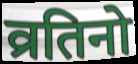
व्रतिनो